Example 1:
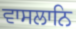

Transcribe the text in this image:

ਵਾਸਲਾਨਿ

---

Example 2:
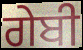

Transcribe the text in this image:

ਗੇਬੀ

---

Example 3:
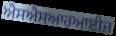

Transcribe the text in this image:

ਐਸਐਸਆਰਆਈਜ਼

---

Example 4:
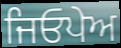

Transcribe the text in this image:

ਜਿਓਪੇਅ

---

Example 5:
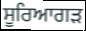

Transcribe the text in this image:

ਸੂਰਿਆਗੜ